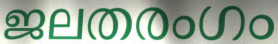
ജലതരംഗം